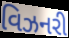
વિઝનરી